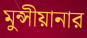
মুন্সীয়ানার